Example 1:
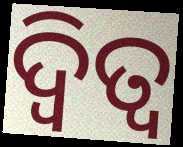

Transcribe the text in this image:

ଦ୍ୱିତ୍ୱ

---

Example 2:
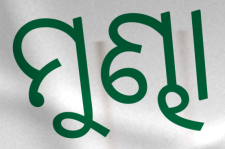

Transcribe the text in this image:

ମୁଣ୍ଢା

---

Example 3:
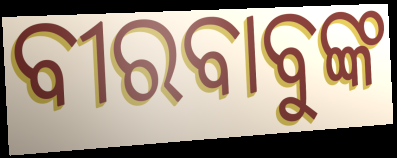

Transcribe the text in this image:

ବୀରବାବୁଙ୍କ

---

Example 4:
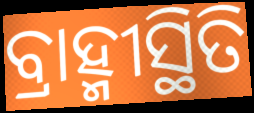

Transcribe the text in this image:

ବ୍ରାହ୍ମୀସ୍ଥିତି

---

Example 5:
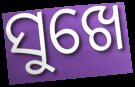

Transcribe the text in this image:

ସୁଖେ